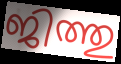
ജിത്തു